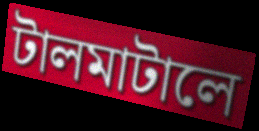
টালমাটালে